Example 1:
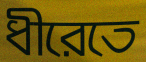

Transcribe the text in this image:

ধীরেতে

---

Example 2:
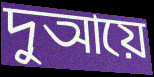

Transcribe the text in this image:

দুআয়ে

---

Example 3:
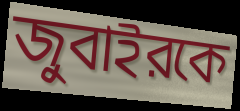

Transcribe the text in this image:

জুবাইরকে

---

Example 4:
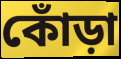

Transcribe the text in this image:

কোঁড়া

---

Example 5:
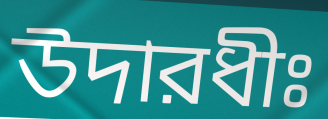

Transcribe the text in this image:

উদারধীঃ